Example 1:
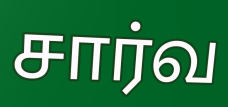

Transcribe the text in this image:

சார்வ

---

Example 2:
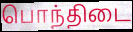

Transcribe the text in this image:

பொந்திடை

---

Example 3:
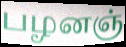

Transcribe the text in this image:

பழனஞ்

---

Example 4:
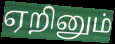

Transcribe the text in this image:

ஏறினும்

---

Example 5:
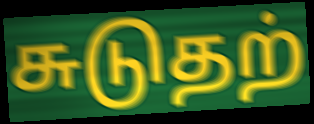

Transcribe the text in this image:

சுடுதற்